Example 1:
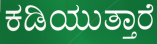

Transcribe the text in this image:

ಕಡಿಯುತ್ತಾರೆ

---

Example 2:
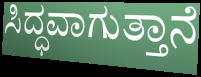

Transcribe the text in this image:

ಸಿದ್ಧವಾಗುತ್ತಾನೆ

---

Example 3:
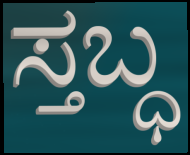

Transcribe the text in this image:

ಸ್ತಬ್ಧ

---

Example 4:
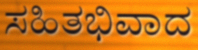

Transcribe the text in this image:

ಸಹಿತಭಿವಾದ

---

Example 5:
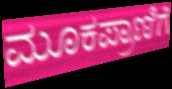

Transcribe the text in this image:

ಮೂಕಪ್ರಾಣಿಗೆ